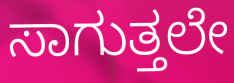
ಸಾಗುತ್ತಲೇ